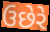
ઉછેરે